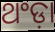
ଥଂଡ଼ା